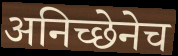
अनिच्छेनेच